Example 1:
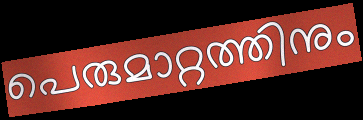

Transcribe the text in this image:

പെരുമാറ്റത്തിനും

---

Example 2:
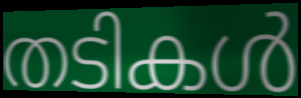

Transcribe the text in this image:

തടികൾ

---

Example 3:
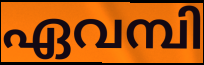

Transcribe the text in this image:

ഏവമ്പി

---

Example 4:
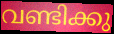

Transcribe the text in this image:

വണ്ടിക്കു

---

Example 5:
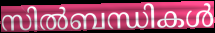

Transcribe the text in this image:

സിൽബന്ധികൾ